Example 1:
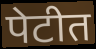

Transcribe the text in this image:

पेटीत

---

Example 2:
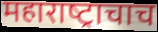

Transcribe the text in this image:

महाराष्ट्राचाच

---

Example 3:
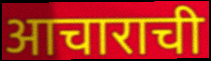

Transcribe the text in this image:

आचाराची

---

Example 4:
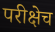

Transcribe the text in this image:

परीक्षेच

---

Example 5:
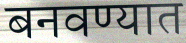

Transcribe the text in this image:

बनवण्यात